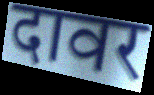
दावर